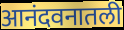
आनंदवनातली